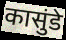
कासुंडे